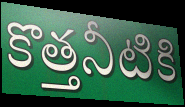
కొత్తనీటికి